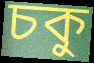
চকু